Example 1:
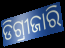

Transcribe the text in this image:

ଡିଗ୍ରୀଜାରି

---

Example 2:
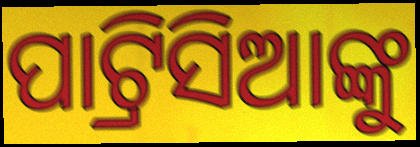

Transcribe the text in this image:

ପାଟ୍ରିସିଆଙ୍କୁ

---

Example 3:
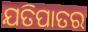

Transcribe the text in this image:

ଯତିପାତର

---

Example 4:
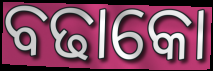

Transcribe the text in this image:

ବଢାକୋ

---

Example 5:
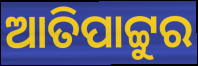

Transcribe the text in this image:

ଆତିପାଟ୍ଟୁର